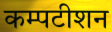
कम्पटीशन